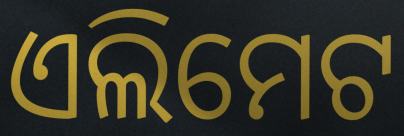
ଏଲିମେଟ